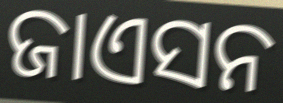
ଜାଏସନ